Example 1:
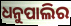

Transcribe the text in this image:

ଧନୁପାଲିର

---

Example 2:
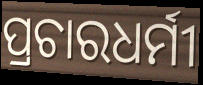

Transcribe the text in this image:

ପ୍ରଚାରଧର୍ମୀ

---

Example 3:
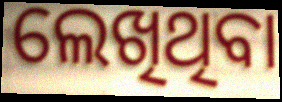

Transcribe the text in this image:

ଲେଖିଥିବା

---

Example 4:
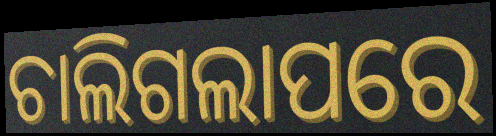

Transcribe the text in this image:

ଚାଲିଗଲାପରେ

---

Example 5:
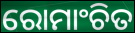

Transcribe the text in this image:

ରୋମାଂଚିତ